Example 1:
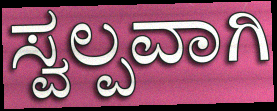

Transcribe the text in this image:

ಸ್ವಲ್ಪವಾಗಿ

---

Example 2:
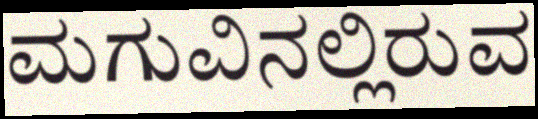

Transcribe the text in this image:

ಮಗುವಿನಲ್ಲಿರುವ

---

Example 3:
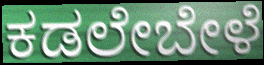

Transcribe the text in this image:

ಕಡಲೇಬೇಳೆ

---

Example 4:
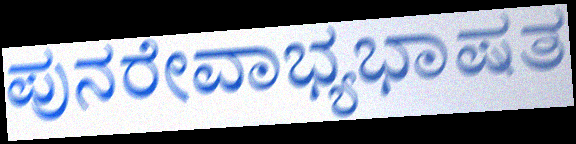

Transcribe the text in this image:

ಪುನರೇವಾಭ್ಯಭಾಷತ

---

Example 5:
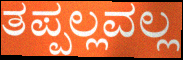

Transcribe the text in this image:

ತಪ್ಪಲ್ಲವಲ್ಲ